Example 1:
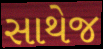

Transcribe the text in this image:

સાથેજ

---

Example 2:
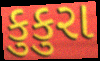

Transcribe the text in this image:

કુકુરા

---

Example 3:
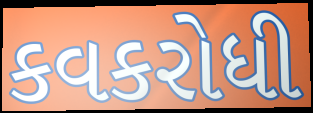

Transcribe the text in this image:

કવકરોધી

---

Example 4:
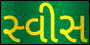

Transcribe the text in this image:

સ્વીસ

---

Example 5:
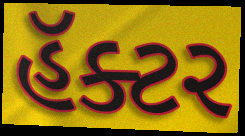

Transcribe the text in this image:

હૅક્ટર